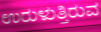
ಉರುಳುತ್ತಿರುವ